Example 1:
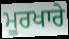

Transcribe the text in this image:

ਮੂਰਖਾਰੇ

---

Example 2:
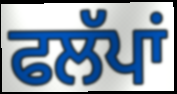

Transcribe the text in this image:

ਫਲੱਪਾਂ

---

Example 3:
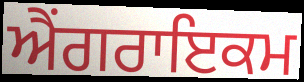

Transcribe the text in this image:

ਐਂਗਰਾਇਕਮ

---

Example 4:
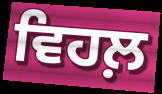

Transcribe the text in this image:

ਵਿਹਲ਼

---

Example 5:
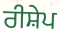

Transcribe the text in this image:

ਰੀਸ਼ੇਪ